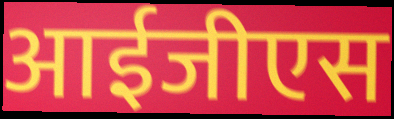
आईजीएस